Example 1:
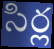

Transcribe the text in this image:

సిర్ల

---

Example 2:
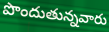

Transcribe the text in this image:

పొందుతున్నవారు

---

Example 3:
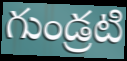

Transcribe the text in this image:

గుండ్రటి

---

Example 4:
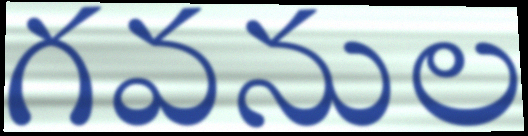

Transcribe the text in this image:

గవనుల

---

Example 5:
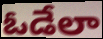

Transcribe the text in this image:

ఓడేలా